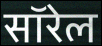
सॉरेल